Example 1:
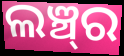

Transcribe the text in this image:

ଲଞ୍ଚ୍‍ର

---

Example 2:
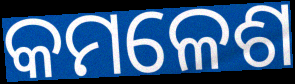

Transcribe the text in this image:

କମଳେଶ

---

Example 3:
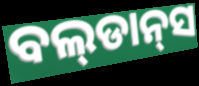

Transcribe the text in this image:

ବଲ୍‌ଡାନ୍‌ସ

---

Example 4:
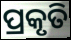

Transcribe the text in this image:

ପ୍ରକୃତି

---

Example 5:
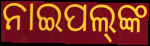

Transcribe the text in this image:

ନାଇପଲ୍‍ଙ୍କ